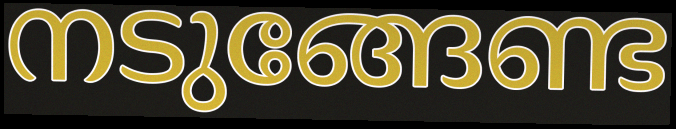
നടുങ്ങേണ്ട